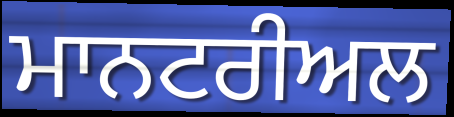
ਮਾਨਟਰੀਅਲ